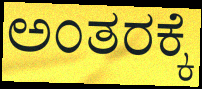
ಅಂತರಕ್ಕೆ